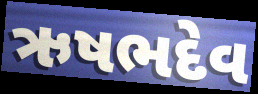
ઋષભદેવ